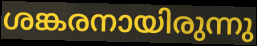
ശങ്കരനായിരുന്നു